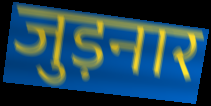
जुड़नार